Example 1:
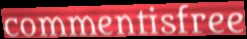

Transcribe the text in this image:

commentisfree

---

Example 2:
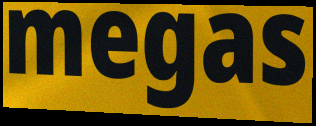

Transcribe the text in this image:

megas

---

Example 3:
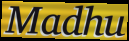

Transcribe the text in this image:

Madhu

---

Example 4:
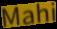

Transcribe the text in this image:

Mahi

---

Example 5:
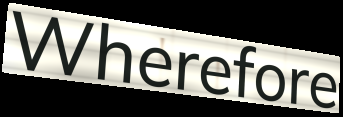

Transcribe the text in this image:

Wherefore